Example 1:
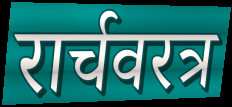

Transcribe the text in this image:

रार्चवरत्र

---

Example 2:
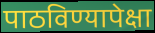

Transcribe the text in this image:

पाठविण्यापेक्षा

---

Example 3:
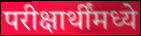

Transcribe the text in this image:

परीक्षार्थींमध्ये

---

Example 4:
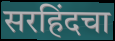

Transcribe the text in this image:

सरहिंदचा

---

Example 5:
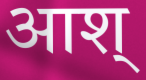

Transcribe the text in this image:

आश्